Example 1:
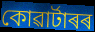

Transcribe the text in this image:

কোৱাৰ্টাৰৰ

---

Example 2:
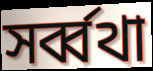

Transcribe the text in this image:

সৰ্ব্বথা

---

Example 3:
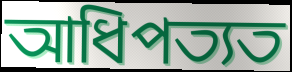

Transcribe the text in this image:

আধিপত্যত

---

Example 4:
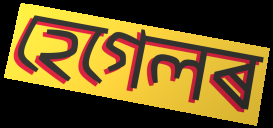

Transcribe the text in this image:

হেগেলৰ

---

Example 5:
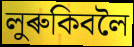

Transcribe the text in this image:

লুৰুকিবলৈ